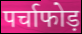
पर्चाफोड़